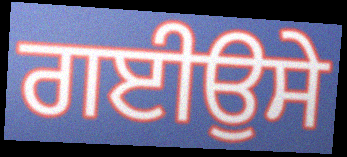
ਗਈਉਸੇ